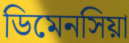
ডিমেনসিয়া